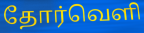
தோர்வெளி